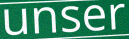
unser